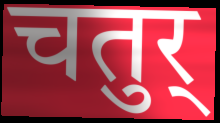
चतुर्